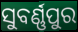
ସୁବର୍ଣ୍ଣପୁର